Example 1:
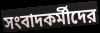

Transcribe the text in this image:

সংবাদকর্মীদের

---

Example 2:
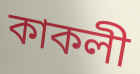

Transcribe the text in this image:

কাকলী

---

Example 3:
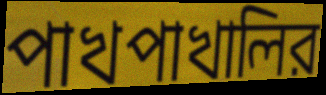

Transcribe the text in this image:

পাখপাখালির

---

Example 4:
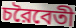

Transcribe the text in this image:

চরৈবেতী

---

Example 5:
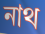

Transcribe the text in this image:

নাথ